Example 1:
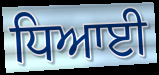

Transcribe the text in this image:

ਧਿਆਈ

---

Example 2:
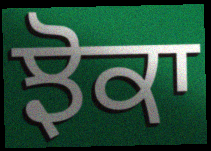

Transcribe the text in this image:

ਝੋਕਾ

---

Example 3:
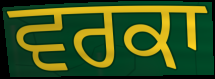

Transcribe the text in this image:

ਵਰਕਾ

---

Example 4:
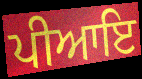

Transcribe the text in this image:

ਪੀਆਇ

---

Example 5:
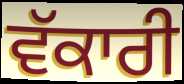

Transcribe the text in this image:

ਵੱਕਾਰੀ